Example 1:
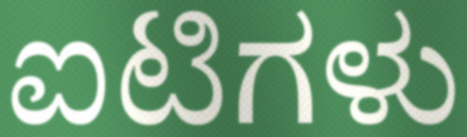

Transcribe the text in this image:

ಐಟಿಗಳು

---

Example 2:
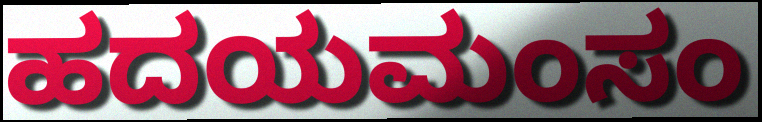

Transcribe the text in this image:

ಹದಯಮಂಸಂ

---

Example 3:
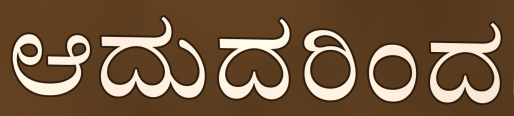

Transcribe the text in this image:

ಆದುದರಿಂದ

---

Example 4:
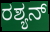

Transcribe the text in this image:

ರಶ್ಯನ್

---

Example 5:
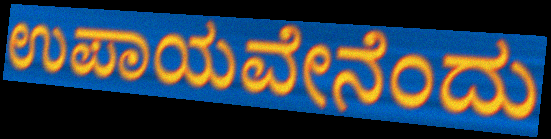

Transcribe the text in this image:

ಉಪಾಯವೇನೆಂದು